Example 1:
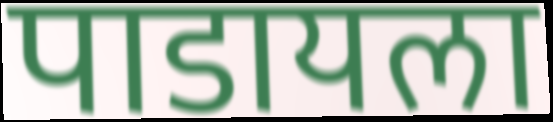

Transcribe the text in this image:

पाडायला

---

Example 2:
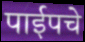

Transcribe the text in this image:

पाईपचे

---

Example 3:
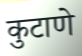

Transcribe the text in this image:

कुटाणे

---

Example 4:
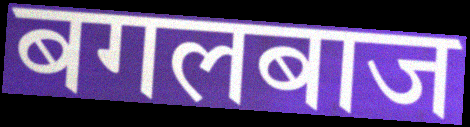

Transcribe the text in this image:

बगलबाज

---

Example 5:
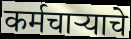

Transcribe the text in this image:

कर्मचाऱ्याचे